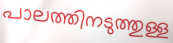
പാലത്തിനടുത്തുള്ള